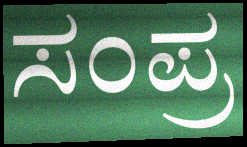
ಸಂಪ್ರ